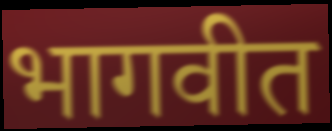
भागवीत